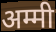
अम्मी